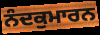
ਨੰਦਕੁਮਾਰਨ